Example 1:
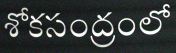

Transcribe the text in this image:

శోకసంద్రంలో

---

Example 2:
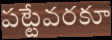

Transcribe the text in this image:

పట్టేవరకూ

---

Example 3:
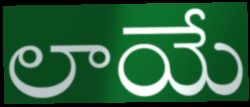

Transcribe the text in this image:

లాయే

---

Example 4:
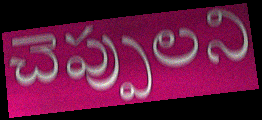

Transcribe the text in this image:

చెప్పులని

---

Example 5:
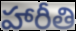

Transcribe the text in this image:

హారీతి